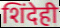
शिंदेही